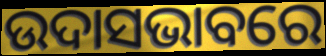
ଉଦାସଭାବରେ